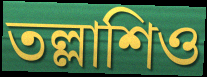
তল্লাশিও